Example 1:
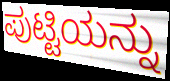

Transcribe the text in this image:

ಪುಟ್ಟಿಯನ್ನು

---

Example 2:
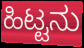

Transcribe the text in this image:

ಹಿಟ್ಟನು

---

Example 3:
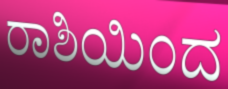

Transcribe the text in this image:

ರಾಶಿಯಿಂದ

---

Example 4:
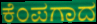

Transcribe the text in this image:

ಕೆಂಪಗಾದ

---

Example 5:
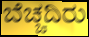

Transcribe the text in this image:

ಬೆಚ್ಚದಿರು